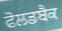
ਫੋਲਡਬੈਕ